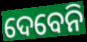
ଦେବେନି